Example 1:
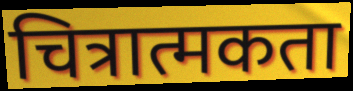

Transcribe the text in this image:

चित्रात्मकता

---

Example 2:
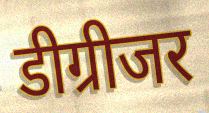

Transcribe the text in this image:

डीग्रीजर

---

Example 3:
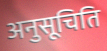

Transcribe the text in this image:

अनुसूचिति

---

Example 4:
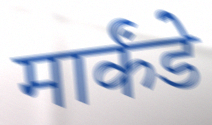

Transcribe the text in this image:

मार्कंडे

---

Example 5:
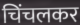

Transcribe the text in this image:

चिंचलकर